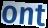
ont